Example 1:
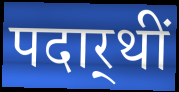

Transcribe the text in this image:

पदार्थीं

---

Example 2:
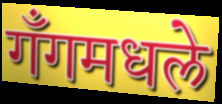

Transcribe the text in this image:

गँगमधले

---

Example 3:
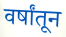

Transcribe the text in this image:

वर्षांतून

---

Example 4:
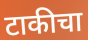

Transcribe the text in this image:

टाकीचा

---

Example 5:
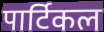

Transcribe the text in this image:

पार्टिकल